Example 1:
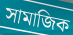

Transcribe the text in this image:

সামাজিক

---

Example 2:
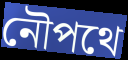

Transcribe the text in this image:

নৌপথে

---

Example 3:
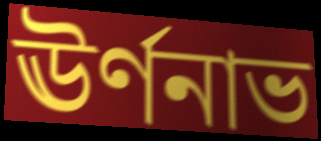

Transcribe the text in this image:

ঊর্ণনাভ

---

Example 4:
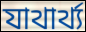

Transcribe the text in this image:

যাথার্থ্য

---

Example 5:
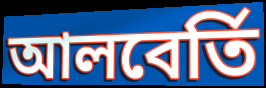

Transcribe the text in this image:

আলবের্তি